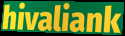
hivaliank